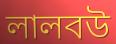
লালবউ